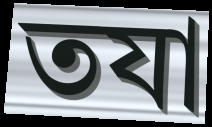
তযা